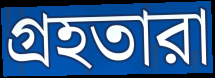
গ্রহতারা